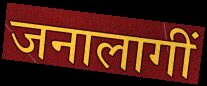
जनालागीं